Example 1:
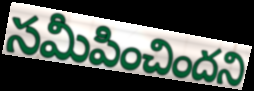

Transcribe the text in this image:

సమీపించిందని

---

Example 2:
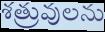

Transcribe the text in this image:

శత్రువులను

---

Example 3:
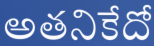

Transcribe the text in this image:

అతనికేదో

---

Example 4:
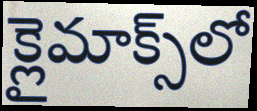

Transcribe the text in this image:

క్లైమాక్స్‌లో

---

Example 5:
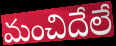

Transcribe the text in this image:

మంచిదేలే